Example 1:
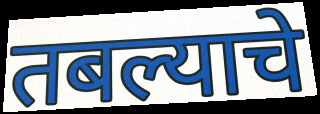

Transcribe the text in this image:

तबल्याचे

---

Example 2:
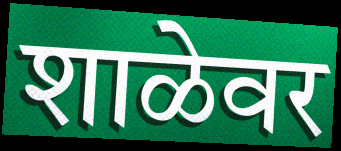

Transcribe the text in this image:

शाळेवर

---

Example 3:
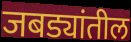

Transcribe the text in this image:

जबड्यांतील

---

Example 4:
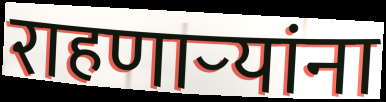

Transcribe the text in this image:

राहणाऱ्यांना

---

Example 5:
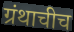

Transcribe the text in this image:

ग्रंथाचीच